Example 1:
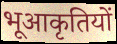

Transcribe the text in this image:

भूआकृतियों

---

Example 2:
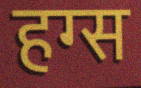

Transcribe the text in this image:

हग्स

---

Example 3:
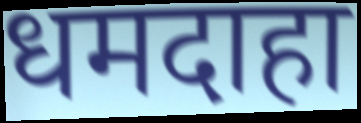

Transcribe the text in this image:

धमदाहा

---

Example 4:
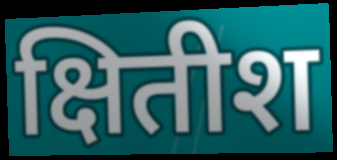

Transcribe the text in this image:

क्षितीश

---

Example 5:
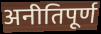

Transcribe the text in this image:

अनीतिपूर्ण